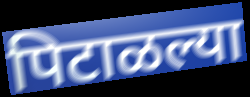
पिटाळल्या